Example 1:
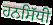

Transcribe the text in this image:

ਹਨਸਿੱਧੀ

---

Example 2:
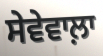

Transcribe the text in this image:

ਸੇਵੇਵਾਲ਼ਾ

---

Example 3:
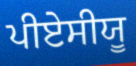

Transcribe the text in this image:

ਪੀਏਸੀਯੂ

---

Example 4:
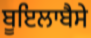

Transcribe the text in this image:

ਬੂਇਲਾਬੈਸੇ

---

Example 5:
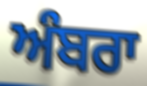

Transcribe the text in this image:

ਅੰਬਰਾ